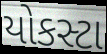
યોકસ્ટા